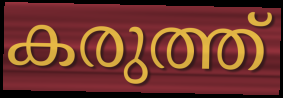
കരുത്ത്